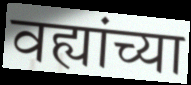
वह्यांच्या